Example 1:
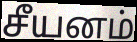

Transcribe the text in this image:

சீயனம்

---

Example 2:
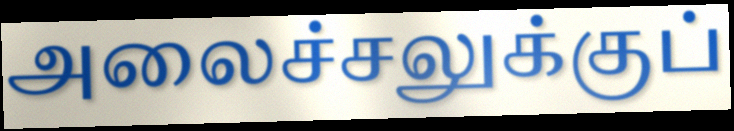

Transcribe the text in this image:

அலைச்சலுக்குப்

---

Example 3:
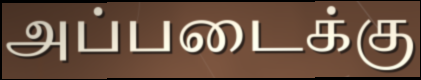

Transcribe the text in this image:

அப்படைக்கு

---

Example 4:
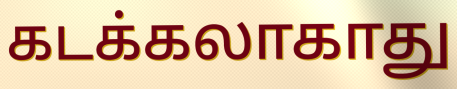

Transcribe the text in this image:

கடக்கலாகாது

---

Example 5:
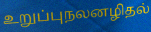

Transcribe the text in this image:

உறுப்புநலனழிதல்